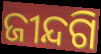
ଜୀନ୍ଦଗି